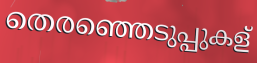
തെരഞ്ഞെടുപ്പുകള്